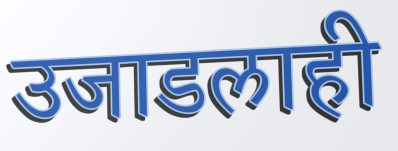
उजाडलाही